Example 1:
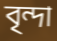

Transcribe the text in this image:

বৃন্দা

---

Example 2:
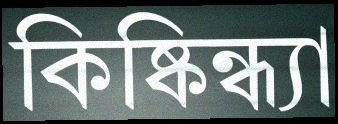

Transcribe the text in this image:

কিষ্কিন্ধ্যা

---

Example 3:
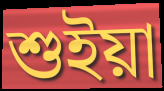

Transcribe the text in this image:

শুইয়া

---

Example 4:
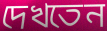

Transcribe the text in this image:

দেখতেন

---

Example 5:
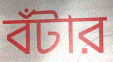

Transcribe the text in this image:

বঁটার